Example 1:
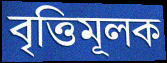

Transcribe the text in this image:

বৃত্তিমূলক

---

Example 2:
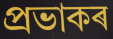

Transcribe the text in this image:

প্ৰভাকৰ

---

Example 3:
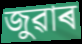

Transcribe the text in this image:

জুৱাৰ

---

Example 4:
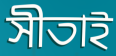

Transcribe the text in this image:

সীতাই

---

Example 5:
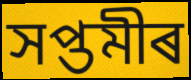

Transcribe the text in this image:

সপ্তমীৰ